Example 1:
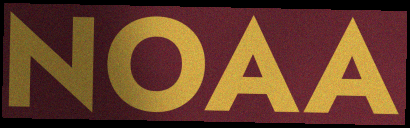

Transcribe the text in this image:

NOAA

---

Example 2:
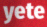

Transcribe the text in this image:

yete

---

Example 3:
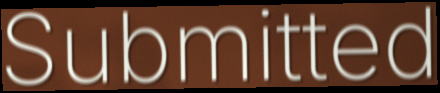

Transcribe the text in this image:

Submitted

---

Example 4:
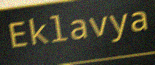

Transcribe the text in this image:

Eklavya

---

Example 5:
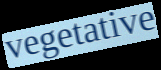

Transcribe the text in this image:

vegetative